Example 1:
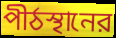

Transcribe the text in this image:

পীঠস্থানের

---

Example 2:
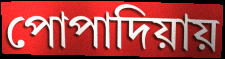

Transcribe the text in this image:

পোপাদিয়ায়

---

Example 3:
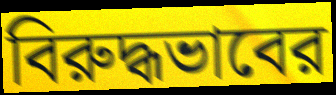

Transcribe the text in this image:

বিরুদ্ধভাবের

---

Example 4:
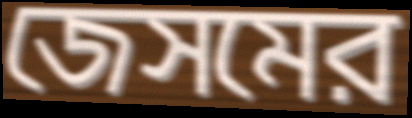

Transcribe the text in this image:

জেসমের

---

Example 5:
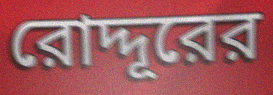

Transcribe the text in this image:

রোদ্দূরের